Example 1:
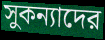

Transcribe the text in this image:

সুকন্যাদের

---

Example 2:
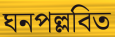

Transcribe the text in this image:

ঘনপল্লবিত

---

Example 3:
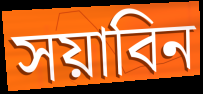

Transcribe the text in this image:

সয়াবিন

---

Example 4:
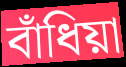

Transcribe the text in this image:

বাঁধিয়া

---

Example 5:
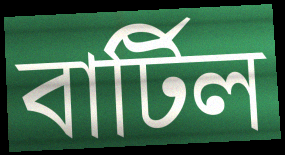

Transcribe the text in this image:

বার্টিল